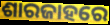
ଶାରଜାହରେ